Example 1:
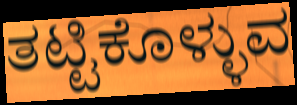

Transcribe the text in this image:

ತಟ್ಟಿಕೊಳ್ಳುವ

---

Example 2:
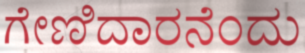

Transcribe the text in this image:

ಗೇಣಿದಾರನೆಂದು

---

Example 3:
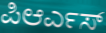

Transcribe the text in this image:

ಪಿಆರ್ಎಸ್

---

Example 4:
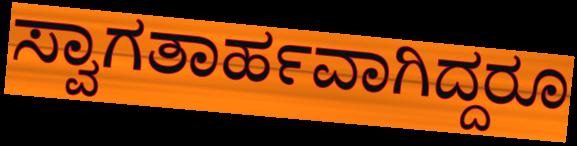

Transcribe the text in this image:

ಸ್ವಾಗತಾರ್ಹವಾಗಿದ್ದರೂ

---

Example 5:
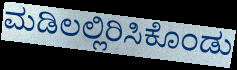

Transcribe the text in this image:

ಮಡಿಲಲ್ಲಿರಿಸಿಕೊಂಡು